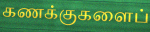
கணக்குகளைப்